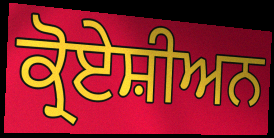
ਕ੍ਰੋਏਸ਼ੀਅਨ